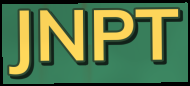
JNPT